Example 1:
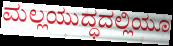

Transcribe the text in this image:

ಮಲ್ಲಯುದ್ಧದಲ್ಲಿಯೂ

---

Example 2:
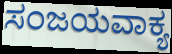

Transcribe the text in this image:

ಸಂಜಯವಾಕ್ಯ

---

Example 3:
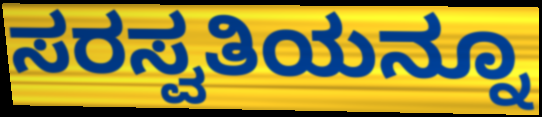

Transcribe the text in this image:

ಸರಸ್ವತಿಯನ್ನೂ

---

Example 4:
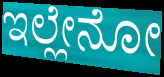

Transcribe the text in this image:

ಇಲ್ಲೇನೋ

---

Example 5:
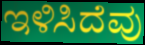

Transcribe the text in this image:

ಇಳಿಸಿದೆವು